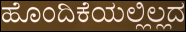
ಹೊಂದಿಕೆಯಲ್ಲಿಲ್ಲದ